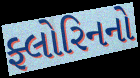
ફ્લોરિનનો